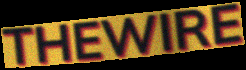
THEWIRE